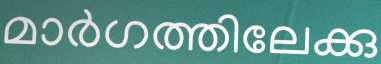
മാർഗത്തിലേക്കു